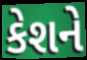
કેશને